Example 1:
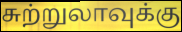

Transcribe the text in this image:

சுற்றுலாவுக்கு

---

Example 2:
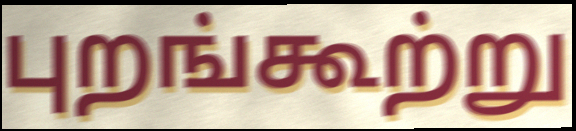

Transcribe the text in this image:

புறங்கூற்று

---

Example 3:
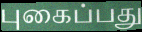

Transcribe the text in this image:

புகைப்பது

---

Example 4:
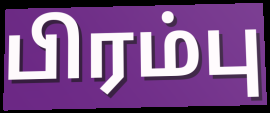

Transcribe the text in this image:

பிரம்பு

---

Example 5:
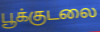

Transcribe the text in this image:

பூக்குடலை